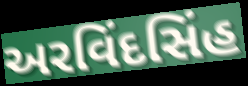
અરવિંદસિંહ